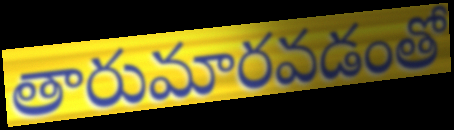
తారుమారవడంతో